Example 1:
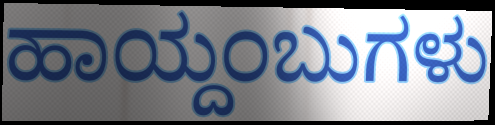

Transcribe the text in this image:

ಹಾಯ್ದಂಬುಗಳು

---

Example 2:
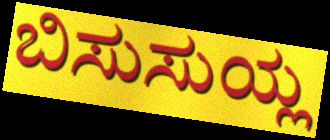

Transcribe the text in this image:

ಬಿಸುಸುಯ್ಲ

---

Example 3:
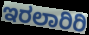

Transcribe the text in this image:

ಇರಲಾರಿರಿ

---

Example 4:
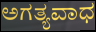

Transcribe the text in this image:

ಅಗತ್ಯವಾಧ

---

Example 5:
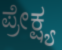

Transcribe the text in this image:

ಪ್ರೇಕ್ಷ್ಯ